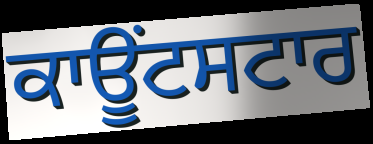
ਕਾਊਂਟਸਟਾਰ